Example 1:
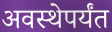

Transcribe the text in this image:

अवस्थेपर्यंत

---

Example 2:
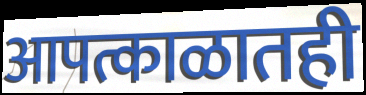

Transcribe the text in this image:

आपत्काळातही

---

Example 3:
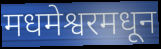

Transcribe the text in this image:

मधमेश्वरमधून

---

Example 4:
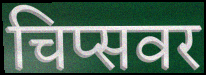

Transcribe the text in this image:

चिप्सवर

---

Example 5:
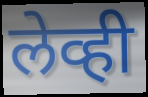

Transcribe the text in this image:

लेव्ही